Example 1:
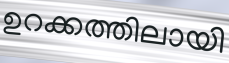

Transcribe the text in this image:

ഉറക്കത്തിലായി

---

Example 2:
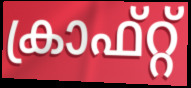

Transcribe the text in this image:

ക്രാഫ്റ്റ്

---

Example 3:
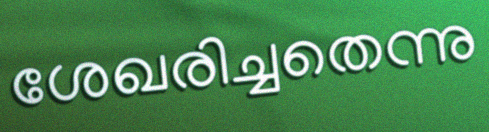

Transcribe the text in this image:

ശേഖരിച്ചതെന്നു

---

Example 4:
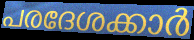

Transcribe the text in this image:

പരദേശക്കാർ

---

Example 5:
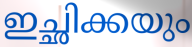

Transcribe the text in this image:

ഇച്ഛിക്കയും